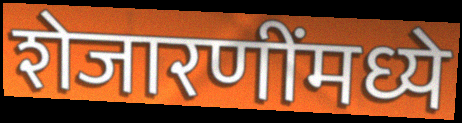
शेजारणींमध्ये